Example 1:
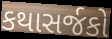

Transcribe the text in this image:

કથાસર્જકો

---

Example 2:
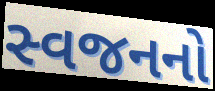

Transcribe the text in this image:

સ્વજનનો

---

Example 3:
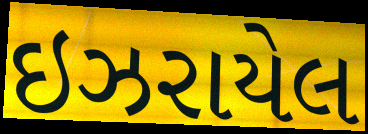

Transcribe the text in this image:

ઇઝરાયેલ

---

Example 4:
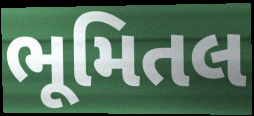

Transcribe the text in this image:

ભૂમિતલ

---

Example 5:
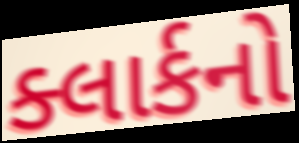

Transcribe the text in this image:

ક્લાર્કનો